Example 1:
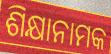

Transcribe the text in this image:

ଶିକ୍ଷାନାମକ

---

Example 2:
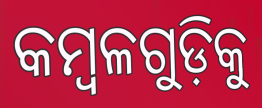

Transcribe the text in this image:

କମ୍ବଳଗୁଡ଼ିକୁ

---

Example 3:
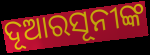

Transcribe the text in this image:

ଦୂଆରସୂନୀଙ୍କ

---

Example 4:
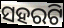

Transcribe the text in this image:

ସହରଟି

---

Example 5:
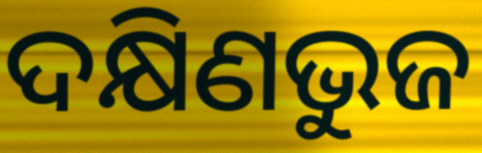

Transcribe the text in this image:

ଦକ୍ଷିଣଭୁଜ